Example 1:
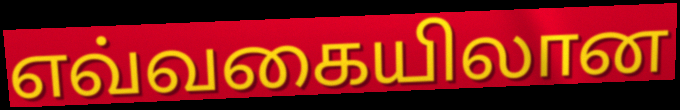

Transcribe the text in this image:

எவ்வகையிலான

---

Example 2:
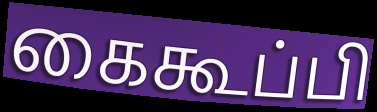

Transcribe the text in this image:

கைகூப்பி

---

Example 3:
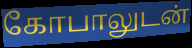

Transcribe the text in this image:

கோபாலுடன்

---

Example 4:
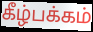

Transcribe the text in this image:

கீழ்பக்கம்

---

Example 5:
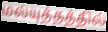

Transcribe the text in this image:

மல்யுத்தத்தில்